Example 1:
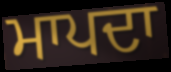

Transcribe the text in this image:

ਮਾਪਦਾ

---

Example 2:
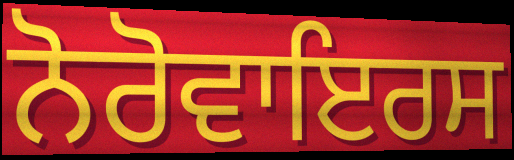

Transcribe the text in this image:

ਨੋਰੋਵਾਇਰਸ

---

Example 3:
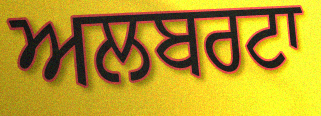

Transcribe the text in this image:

ਅਲਬਰਟਾ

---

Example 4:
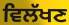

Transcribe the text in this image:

ਵਿਲੱਖਣ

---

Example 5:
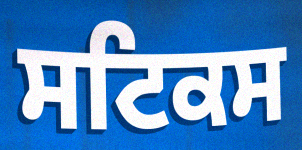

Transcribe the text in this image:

ਸਟਿਕਸ